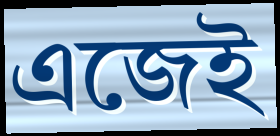
এজেই